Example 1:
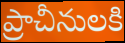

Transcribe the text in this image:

ప్రాచీనులకి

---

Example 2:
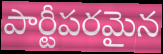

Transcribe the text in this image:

పార్టీపరమైన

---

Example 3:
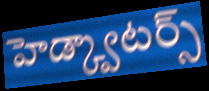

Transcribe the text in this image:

హెడ్క్వాటర్స్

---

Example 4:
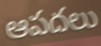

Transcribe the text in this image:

ఆపదలు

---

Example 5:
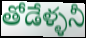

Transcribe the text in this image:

తోడేళ్ళనీ